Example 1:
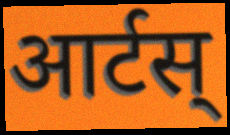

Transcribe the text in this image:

आर्टस्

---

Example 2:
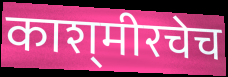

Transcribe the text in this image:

काश्मीरचेच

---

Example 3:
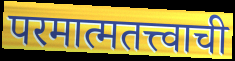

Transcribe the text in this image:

परमात्मतत्त्वाची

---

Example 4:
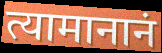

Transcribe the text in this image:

त्यामानानं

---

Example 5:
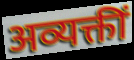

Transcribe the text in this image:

अव्यक्तीं